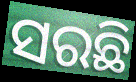
ସରଛି